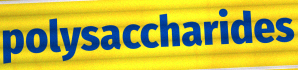
polysaccharides